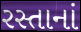
રસ્તાનાં